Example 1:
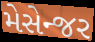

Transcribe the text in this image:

મેસેન્જર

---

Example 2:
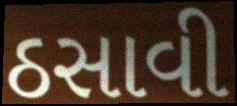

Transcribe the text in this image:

ઠસાવી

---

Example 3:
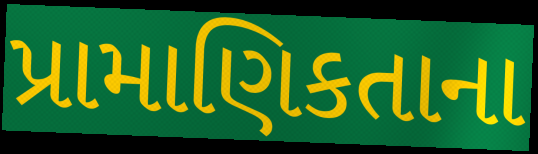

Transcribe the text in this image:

પ્રામાણિકતાના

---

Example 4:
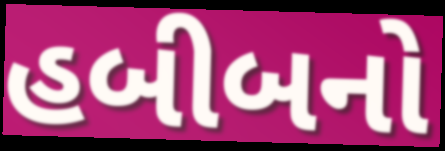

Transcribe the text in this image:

હબીબનો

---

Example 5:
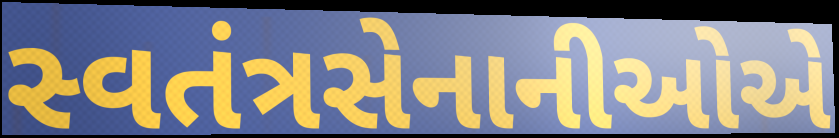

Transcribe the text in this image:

સ્વતંત્રસેનાનીઓએ